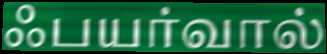
ஃபயர்வால்